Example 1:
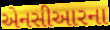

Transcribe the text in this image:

એનસીઆરના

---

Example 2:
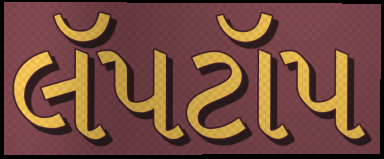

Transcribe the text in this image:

લૅપટૉપ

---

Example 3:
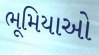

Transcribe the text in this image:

ભૂમિયાઓ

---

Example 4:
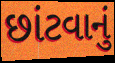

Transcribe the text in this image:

છાંટવાનું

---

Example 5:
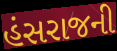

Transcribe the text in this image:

હંસરાજની